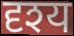
दृश्‍य